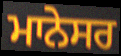
ਮਾਨੇਸਰ